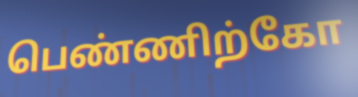
பெண்ணிற்கோ